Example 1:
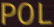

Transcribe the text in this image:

POL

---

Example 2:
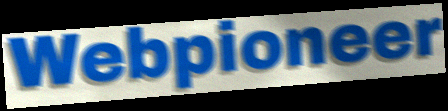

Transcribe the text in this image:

Webpioneer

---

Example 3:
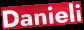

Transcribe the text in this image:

Danieli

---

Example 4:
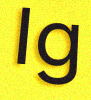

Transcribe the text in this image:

Ig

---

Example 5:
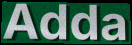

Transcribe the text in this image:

Adda